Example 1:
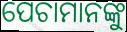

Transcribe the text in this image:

ପେଚାମାନଙ୍କୁ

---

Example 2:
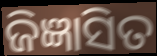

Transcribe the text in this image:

ଜିଜ୍ଞାସିତ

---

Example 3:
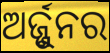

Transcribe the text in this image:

ଅର୍ଜ୍ଜୁନର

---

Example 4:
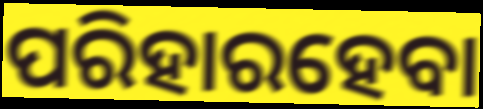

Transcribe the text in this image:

ପରିହାରହେବା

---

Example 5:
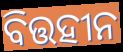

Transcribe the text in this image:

ବିତ୍ତହୀନ